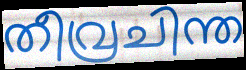
തീവ്രചിന്ത